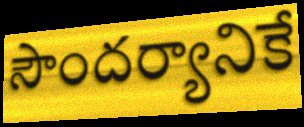
సౌందర్యానికే